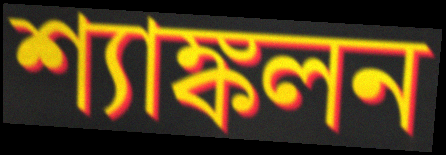
শ্যাঙ্কলন